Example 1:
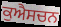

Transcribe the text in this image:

ਕੁਐਸਚਨ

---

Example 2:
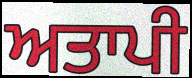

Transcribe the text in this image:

ਅਤਾਪੀ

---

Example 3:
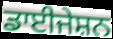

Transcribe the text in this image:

ਡਾਈਜੇਸ਼ਨ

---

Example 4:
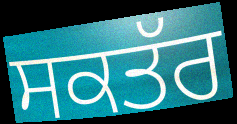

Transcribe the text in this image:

ਸਕਤੱਰ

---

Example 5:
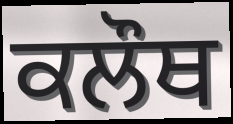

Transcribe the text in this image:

ਕਲੌਥ